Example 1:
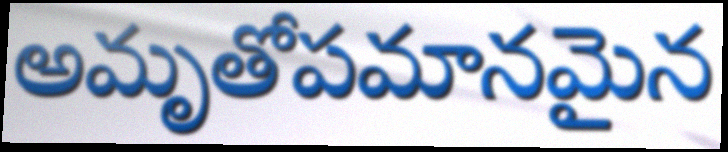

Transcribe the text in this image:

అమృతోపమానమైన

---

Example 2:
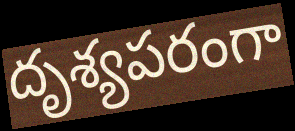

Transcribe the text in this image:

దృశ్యపరంగా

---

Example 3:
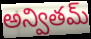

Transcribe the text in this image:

అన్వితమ్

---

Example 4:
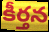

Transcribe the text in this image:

కీర్తన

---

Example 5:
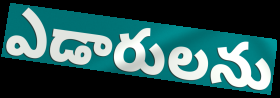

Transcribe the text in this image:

ఎడారులను